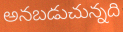
అనబడుచున్నది